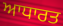
ਆਧਾਰਤ